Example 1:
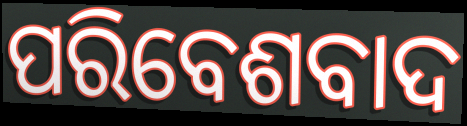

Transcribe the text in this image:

ପରିବେଶବାଦ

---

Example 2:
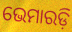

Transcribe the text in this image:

ଭେମାରଡ଼ି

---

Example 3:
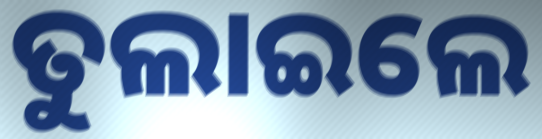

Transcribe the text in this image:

ତୁଲାଇଲେ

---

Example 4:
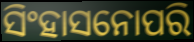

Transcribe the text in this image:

ସିଂହାସନୋପରି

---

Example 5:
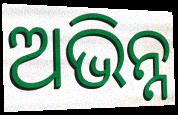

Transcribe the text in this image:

ଅଭିନ୍ନ